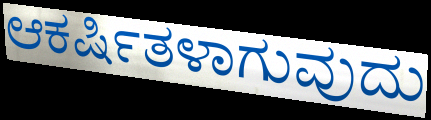
ಆಕರ್ಷಿತಳಾಗುವುದು